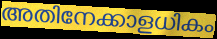
അതിനേക്കാളധികം